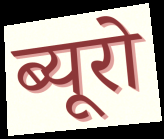
ब्यूरो